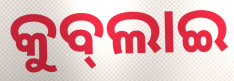
କୁବ୍‌ଲାଇ